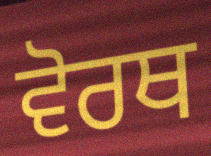
ਵੋਰਥ